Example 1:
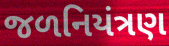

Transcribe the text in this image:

જળનિયંત્રણ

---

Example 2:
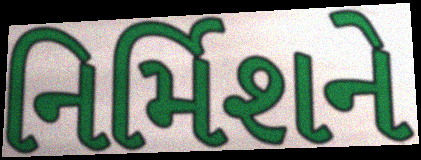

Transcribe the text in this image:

નિર્મિશને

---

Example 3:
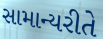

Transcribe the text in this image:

સામાન્યરીતે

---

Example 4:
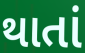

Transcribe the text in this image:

થાતાં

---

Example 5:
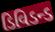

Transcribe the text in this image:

ડિવિડન્ડ